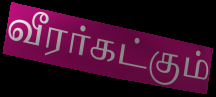
வீரர்கட்கும்